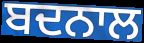
ਬਦਨਾਲ